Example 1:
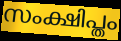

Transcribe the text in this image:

സംക്ഷിപ്തം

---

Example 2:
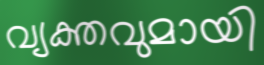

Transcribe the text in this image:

വ്യക്തവുമായി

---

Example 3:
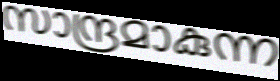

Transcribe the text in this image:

സാന്ദ്രമാകുന്ന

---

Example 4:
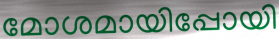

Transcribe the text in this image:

മോശമായിപ്പോയി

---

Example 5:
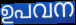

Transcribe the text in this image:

ഉപവന